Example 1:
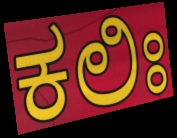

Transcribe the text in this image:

ಕಲಿಃ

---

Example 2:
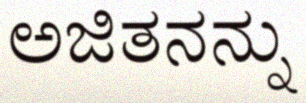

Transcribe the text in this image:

ಅಜಿತನನ್ನು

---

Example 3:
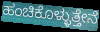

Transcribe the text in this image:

ಹಂಚಿಕೊಳ್ಳುತ್ತೇನೆ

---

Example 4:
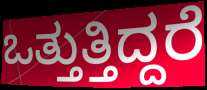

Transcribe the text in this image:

ಒತ್ತುತ್ತಿದ್ದರೆ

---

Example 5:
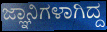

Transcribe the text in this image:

ಜ್ಞಾನಿಗಳಾಗಿದ್ದ